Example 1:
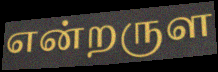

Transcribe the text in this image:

என்றருள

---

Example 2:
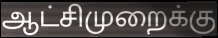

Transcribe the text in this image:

ஆட்சிமுறைக்கு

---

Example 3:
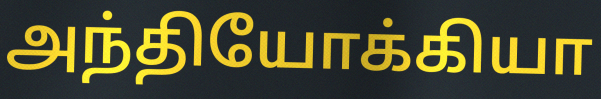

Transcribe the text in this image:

அந்தியோக்கியா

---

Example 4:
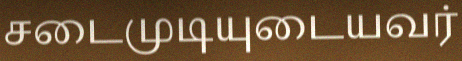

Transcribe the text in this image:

சடைமுடியுடையவர்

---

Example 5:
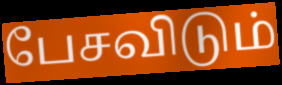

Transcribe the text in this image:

பேசவிடும்